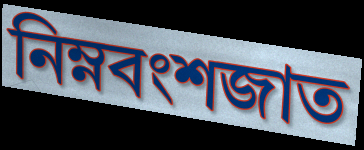
নিম্নবংশজাত